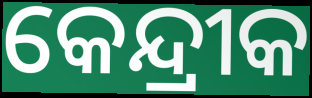
କେନ୍ଦ୍ରୀକ